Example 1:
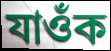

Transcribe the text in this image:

যাওঁক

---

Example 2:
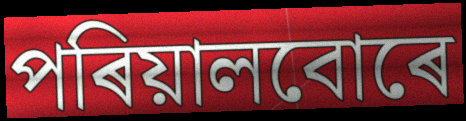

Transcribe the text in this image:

পৰিয়ালবোৰে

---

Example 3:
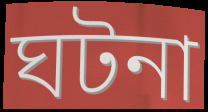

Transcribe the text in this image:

ঘটনা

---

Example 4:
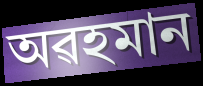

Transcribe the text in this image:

অৱহমান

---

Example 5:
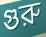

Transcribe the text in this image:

গুৰু